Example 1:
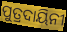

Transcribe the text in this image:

ପୁତ୍ରଦାୟିନୀ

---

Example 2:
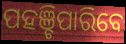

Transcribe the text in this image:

ପହଞ୍ଚିପାରିବେ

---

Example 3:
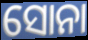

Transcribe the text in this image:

ସୋନା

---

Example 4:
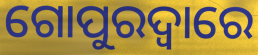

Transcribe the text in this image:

ଗୋପୁରଦ୍ଵାରେ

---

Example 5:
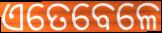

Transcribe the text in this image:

ଏତେବେଳେ